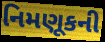
નિમણૂકની